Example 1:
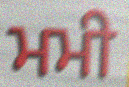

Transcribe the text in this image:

ਮਮੀ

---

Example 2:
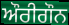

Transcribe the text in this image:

ਔਰੀਗੌਨ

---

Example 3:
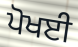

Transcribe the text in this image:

ਪੋਖਈ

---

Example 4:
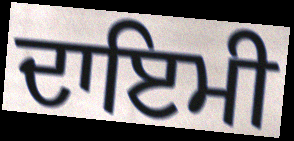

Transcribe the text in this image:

ਦਾਇਮੀ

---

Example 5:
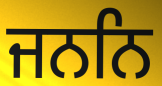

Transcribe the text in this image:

ਜਨਨਿ